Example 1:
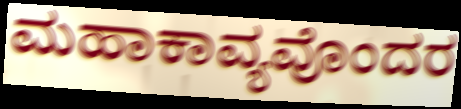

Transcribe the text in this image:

ಮಹಾಕಾವ್ಯವೊಂದರ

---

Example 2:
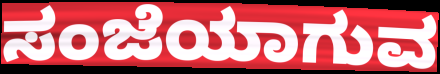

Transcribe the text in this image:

ಸಂಜೆಯಾಗುವ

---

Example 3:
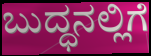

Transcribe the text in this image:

ಬುದ್ಧನಲ್ಲಿಗೆ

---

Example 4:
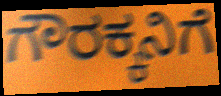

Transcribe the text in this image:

ಗೌರಕ್ಕನಿಗೆ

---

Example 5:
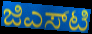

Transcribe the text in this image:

ಜಿಎಸ್‌ಟಿ